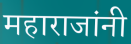
महाराजांनी